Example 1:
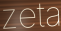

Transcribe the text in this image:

zeta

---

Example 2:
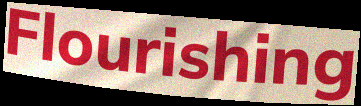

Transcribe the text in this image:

Flourishing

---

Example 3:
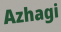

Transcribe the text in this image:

Azhagi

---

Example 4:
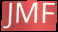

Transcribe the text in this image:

JMF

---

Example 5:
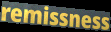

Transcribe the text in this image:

remissness